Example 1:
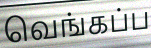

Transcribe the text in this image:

வெங்கப்ப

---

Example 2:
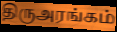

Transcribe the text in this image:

திருஅரங்கம்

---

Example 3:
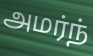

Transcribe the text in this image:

அமர்ந்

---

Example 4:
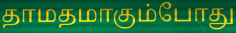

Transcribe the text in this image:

தாமதமாகும்போது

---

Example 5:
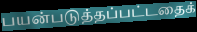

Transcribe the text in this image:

பயன்படுத்தப்பட்டதைக்